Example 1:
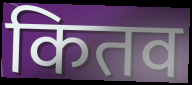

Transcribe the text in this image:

कितव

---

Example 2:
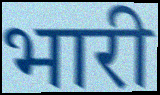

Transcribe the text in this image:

भारी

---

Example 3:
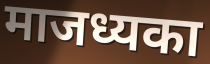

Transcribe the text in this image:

माजध्यका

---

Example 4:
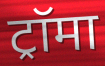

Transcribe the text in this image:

ट्रॉमा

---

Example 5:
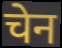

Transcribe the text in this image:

चेन